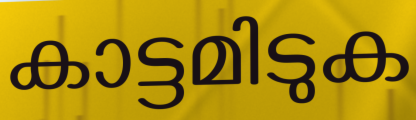
കാട്ടമിടുക